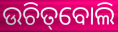
ଉଚିତ୍‌ବୋଲି